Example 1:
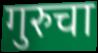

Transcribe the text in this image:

गुरुचा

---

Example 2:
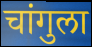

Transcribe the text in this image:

चांगुला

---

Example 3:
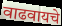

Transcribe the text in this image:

वाढवायचे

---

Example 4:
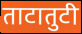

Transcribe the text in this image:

ताटातुटी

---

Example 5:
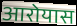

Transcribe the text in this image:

आरोयास